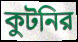
কুটনির